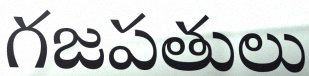
గజపతులు